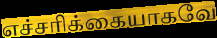
எச்சரிக்கையாகவே